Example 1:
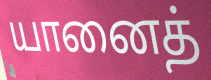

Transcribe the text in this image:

யானைத்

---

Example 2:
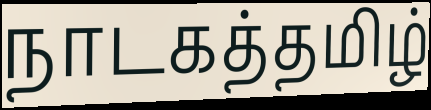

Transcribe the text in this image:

நாடகத்தமிழ்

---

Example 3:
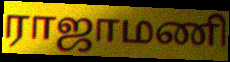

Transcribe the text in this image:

ராஜாமணி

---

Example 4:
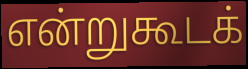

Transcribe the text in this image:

என்றுகூடக்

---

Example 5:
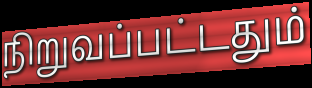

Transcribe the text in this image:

நிறுவப்பட்டதும்